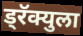
ड्रॅक्युला